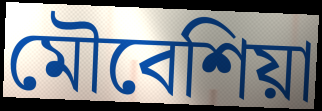
মৌবেশিয়া